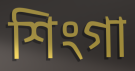
শিংগা